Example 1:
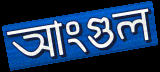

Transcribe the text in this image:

আংগুল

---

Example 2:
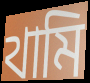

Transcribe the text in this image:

থামি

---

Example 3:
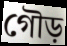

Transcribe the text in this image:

গৌড়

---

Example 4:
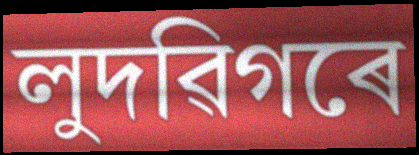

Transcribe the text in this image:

লুদৱিগৰে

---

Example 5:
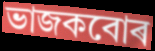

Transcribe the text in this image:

ভাজকবোৰ